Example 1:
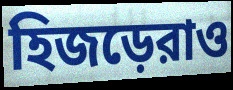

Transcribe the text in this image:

হিজড়েরাও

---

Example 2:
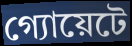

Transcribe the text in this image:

গ্যোয়েটে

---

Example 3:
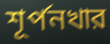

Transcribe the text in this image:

শূর্পনখার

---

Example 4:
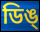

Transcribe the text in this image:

ডিঙ্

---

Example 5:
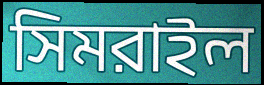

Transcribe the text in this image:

সিমরাইল